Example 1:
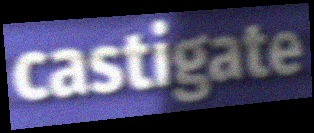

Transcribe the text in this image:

castigate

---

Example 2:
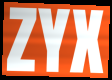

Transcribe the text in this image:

ZYX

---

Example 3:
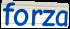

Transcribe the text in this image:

forza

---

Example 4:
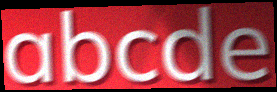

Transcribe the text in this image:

abcde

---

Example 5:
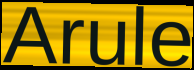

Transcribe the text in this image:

Arule